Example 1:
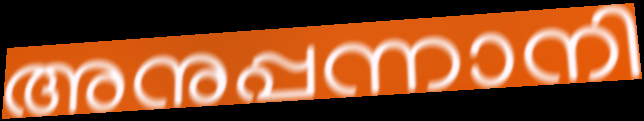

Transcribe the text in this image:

അനുപ്പന്നാനി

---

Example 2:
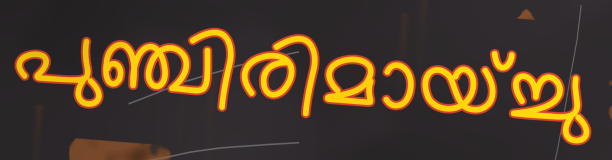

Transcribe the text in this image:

പുഞ്ചിരിമായ്ച്ചു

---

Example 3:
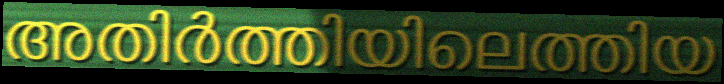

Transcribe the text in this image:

അതിർത്തിയിലെത്തിയ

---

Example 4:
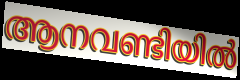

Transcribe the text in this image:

ആനവണ്ടിയിൽ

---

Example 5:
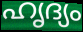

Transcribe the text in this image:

ഹൃദ്യം